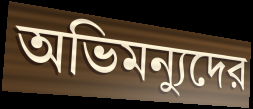
অভিমন্যুদের